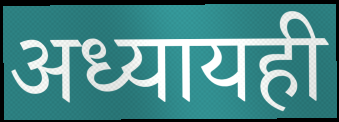
अध्यायही